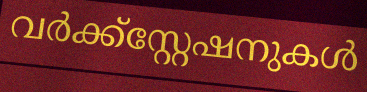
വർക്ക്സ്റ്റേഷനുകൾ